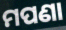
ମପଣା